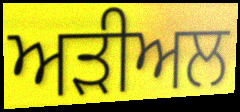
ਅੜੀਅਲ